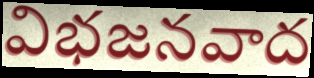
విభజనవాద